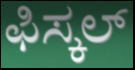
ಫಿಸ್ಕಲ್